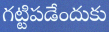
గట్టిపడేందుకు